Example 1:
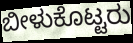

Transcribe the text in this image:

ಬೀಳುಕೊಟ್ಟರು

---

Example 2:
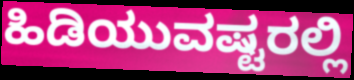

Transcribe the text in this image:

ಹಿಡಿಯುವಷ್ಟರಲ್ಲಿ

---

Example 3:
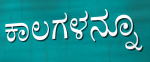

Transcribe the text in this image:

ಕಾಲಗಳನ್ನೂ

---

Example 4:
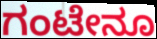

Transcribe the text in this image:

ಗಂಟೇನೂ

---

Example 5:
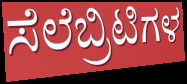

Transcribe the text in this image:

ಸೆಲೆಬ್ರಿಟಿಗಳ